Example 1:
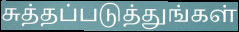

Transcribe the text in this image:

சுத்தப்படுத்துங்கள்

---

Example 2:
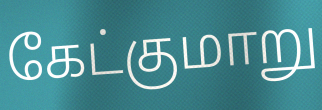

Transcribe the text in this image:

கேட்குமாறு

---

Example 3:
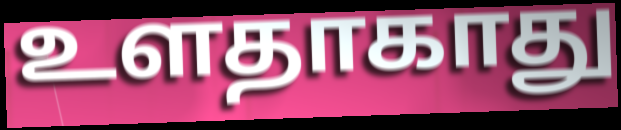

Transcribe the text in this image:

உளதாகாது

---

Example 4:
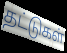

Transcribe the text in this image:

தட்டுகள்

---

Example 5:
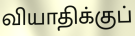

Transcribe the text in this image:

வியாதிக்குப்